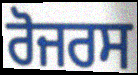
ਰੋਜਰਸ